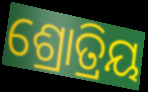
ଶ୍ରୋତ୍ରିୟ